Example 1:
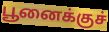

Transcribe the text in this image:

பூனைக்குச்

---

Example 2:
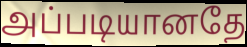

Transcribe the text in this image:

அப்படியானதே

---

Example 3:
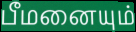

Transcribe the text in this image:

பீமனையும்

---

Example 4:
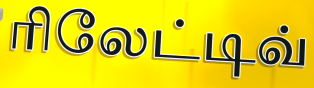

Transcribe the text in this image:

ரிலேட்டிவ்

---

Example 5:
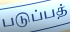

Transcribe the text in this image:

படுப்பத்